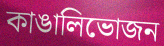
কাঙালিভোজন